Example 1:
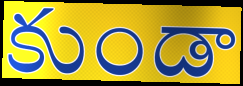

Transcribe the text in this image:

కుండా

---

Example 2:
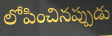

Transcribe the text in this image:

లోపించినప్పుడు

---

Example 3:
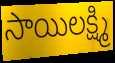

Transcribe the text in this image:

సాయిలక్ష్మి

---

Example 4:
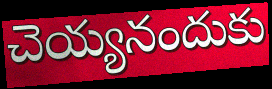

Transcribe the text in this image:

చెయ్యనందుకు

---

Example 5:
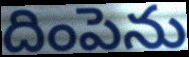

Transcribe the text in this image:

దింపెను